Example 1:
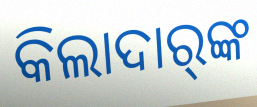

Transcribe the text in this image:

କିଲାଦାର୍‍ଙ୍କ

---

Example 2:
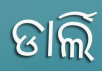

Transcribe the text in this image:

ଡାର୍ଲି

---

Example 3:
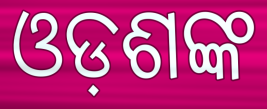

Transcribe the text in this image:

ଓଡ଼ଶଙ୍କ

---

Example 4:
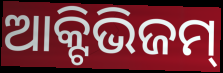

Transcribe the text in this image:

ଆକ୍ଟିଭିଜମ୍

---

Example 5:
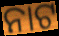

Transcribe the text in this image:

ନାଟ